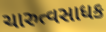
ચારુત્વસાધક